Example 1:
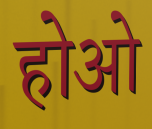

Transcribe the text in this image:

होओ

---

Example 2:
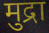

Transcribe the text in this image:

मुद्रा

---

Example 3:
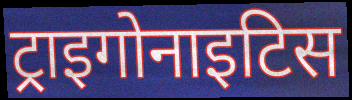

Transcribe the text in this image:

ट्राइगोनाइटिस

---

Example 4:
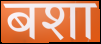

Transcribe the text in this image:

बशा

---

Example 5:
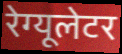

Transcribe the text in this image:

रेग्यूलेटर